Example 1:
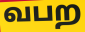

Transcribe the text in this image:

வபற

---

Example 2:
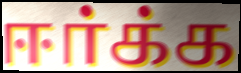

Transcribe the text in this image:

ஈர்க்க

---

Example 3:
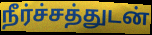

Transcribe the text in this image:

நீர்ச்சத்துடன்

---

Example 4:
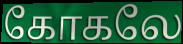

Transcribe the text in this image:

கோகலே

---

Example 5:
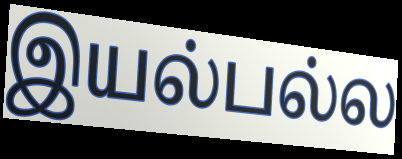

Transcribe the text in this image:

இயல்பல்ல